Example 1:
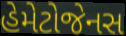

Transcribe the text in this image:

હેમેટોજેનસ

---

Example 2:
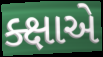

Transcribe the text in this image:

ક્ક્ષાએ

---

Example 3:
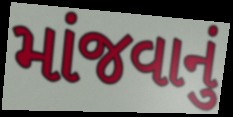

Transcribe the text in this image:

માંજવાનું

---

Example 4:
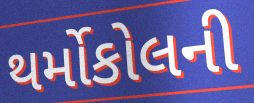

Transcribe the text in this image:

થર્મોકોલની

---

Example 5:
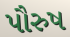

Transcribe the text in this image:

પૌરુષ